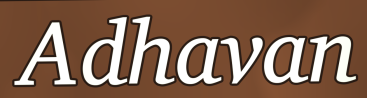
Adhavan